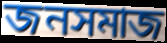
জনসমাজ